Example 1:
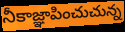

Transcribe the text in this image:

నీకాజ్ఞాపించుచున్న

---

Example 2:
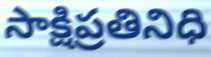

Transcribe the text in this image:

సాక్షిప్రతినిధి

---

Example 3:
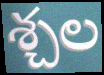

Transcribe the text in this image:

శ్చల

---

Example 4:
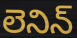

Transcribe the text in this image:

లెనిన్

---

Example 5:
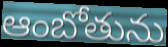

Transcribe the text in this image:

ఆంబోతును